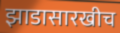
झाडासारखीच